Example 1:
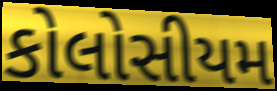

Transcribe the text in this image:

કોલોસીયમ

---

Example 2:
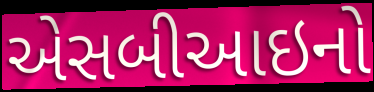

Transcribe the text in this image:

એસબીઆઇનો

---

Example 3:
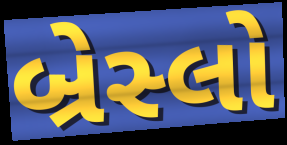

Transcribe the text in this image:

બ્રેસ્લો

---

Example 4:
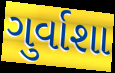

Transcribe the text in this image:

ગુર્વાશા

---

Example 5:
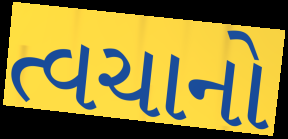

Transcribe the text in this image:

ત્વચાનો